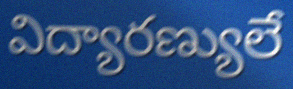
విద్యారణ్యులే